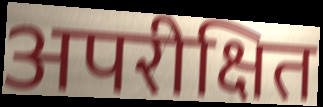
अपरीक्षित